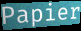
Papier